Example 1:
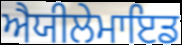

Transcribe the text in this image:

ਐਯੀਲੇਮਾਇਡ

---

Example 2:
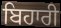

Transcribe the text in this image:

ਬਿਹਾਰੀ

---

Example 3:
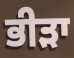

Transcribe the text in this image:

ਭੀੜਾ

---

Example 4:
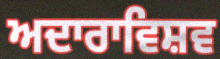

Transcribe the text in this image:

ਅਦਾਰਾਵਿਸ਼ਵ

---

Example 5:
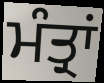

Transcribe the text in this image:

ਮੰਤ੍ਰਾਂ